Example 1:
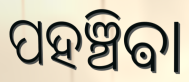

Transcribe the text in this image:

ପହଞ୍ଚିଵା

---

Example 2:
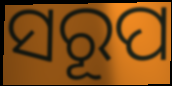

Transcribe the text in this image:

ସରୂପ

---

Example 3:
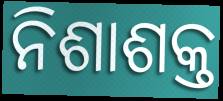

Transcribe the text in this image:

ନିଶାଶକ୍ତ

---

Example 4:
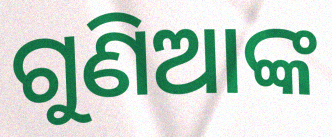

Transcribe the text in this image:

ଗୁଣିଆଙ୍କ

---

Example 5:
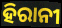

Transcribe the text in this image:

ହିରାନୀ